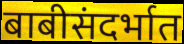
बाबीसंदर्भात